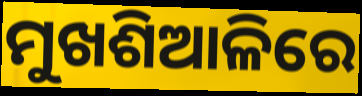
ମୁଖଶିଆଳିରେ